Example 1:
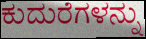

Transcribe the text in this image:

ಕುದುರೆಗಳನ್ನು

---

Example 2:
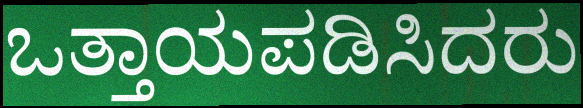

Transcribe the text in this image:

ಒತ್ತಾಯಪಡಿಸಿದರು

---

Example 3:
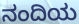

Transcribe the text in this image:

ನಂದಿಯ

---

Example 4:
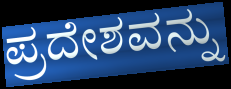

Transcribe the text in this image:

ಪ್ರದೇಶವನ್ನು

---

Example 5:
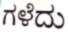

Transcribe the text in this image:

ಗಳೆದು